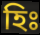
হিঃ